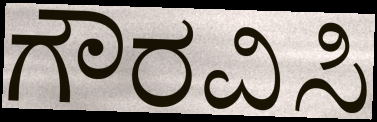
ಗೌರವಿಸಿ